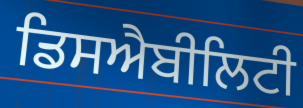
ਡਿਸਐਬੀਲਿਟੀ